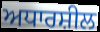
ਅਧਾਰਸ਼ੀਲ